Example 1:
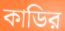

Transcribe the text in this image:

কাডির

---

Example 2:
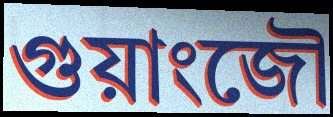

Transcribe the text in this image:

গুয়াংজৌ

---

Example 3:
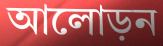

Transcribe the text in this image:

আলোড়ন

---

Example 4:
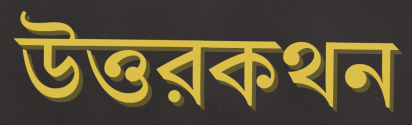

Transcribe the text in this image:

উত্তরকথন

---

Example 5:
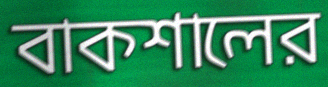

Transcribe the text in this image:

বাকশালের